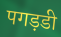
पगड़डी